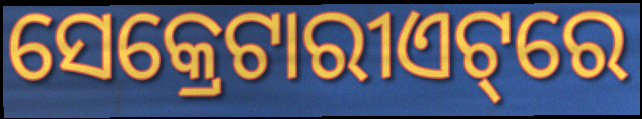
ସେକ୍ରେଟାରୀଏଟ୍‌ରେ